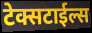
टेक्सटाईल्स